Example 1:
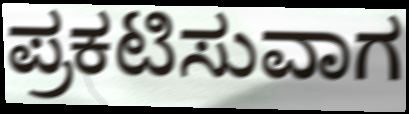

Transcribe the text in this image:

ಪ್ರಕಟಿಸುವಾಗ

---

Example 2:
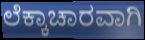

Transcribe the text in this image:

ಲೆಕ್ಕಾಚಾರವಾಗಿ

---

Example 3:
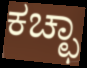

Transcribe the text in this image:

ಕಚ್ಛಾ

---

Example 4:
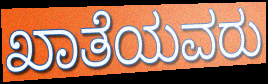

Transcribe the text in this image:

ಖಾತೆಯವರು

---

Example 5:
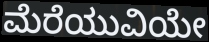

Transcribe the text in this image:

ಮೆರೆಯುವಿಯೇ